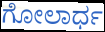
ಗೋಲಾರ್ಧ